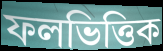
ফলভিত্তিক